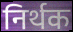
निर्थक